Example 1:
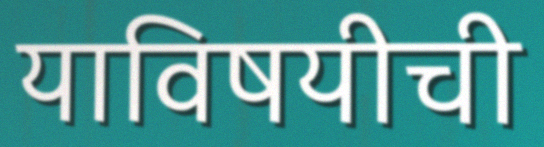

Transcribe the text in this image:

याविषयीची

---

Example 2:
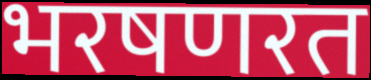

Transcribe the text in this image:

भरषणरत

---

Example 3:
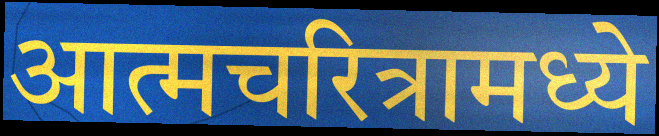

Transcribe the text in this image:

आत्मचरित्रामध्ये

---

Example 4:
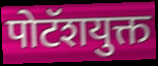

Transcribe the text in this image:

पोटॅशयुक्त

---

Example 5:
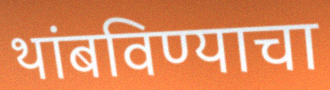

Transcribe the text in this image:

थांबविण्याचा